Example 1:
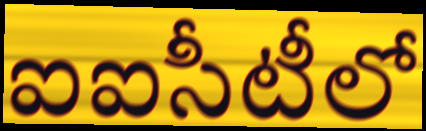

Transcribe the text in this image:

ఐఐసీటీలో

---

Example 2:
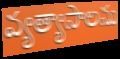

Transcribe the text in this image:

వ్యత్యాసాలను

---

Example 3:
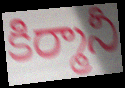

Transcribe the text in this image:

కిర్మానీ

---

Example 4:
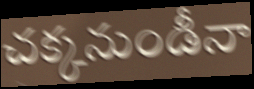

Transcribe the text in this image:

చక్కనుండీనా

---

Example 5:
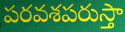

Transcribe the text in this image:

పరవశపరుస్తా